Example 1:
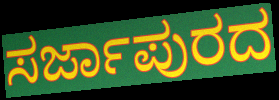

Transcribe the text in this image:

ಸರ್ಜಾಪುರದ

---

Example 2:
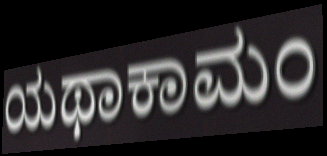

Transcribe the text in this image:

ಯಥಾಕಾಮಂ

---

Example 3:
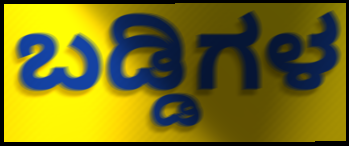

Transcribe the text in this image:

ಬಡ್ಡಿಗಳ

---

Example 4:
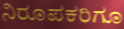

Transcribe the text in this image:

ನಿರೂಪಕರಿಗೂ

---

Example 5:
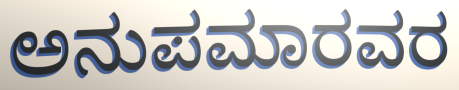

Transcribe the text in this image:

ಅನುಪಮಾರವರ